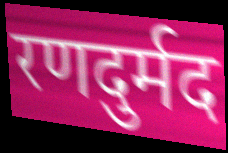
रणदुर्मद